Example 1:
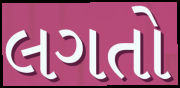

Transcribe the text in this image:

લગતો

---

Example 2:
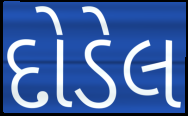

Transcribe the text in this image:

દોડેલ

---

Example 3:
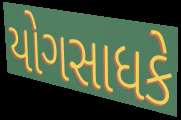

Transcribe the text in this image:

યોગસાધકે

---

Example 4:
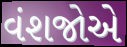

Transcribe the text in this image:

વંશજોએ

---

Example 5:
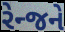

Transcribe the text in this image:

રેન્જને